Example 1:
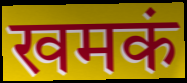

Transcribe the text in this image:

खमकं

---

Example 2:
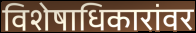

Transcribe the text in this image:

विशेषाधिकारांवर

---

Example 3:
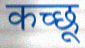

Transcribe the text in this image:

कच्छू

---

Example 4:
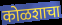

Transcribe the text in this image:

कोळशाचा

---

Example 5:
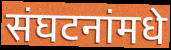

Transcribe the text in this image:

संघटनांमधे